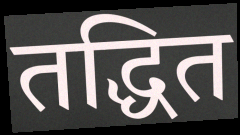
तद्धित